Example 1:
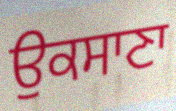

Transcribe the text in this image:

ਉਕਸਾਣਾ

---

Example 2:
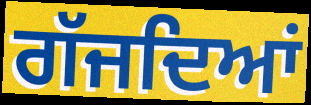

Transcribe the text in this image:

ਗੱਜਦਿਆਂ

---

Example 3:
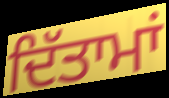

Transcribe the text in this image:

ਦਿੱਤਾਮਾਂ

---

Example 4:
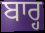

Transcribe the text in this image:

ਬਾਰ੍ਹ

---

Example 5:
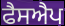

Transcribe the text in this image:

ਫੈਸਐਪ